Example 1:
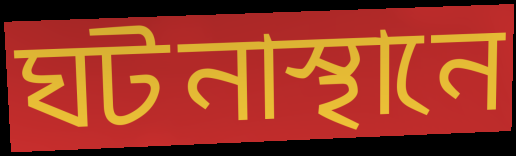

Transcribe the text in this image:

ঘটনাস্থানে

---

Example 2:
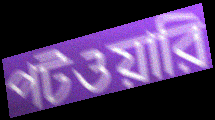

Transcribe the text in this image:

পটওয়ারি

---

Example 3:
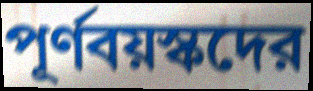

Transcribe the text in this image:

পূর্ণবয়স্কদের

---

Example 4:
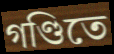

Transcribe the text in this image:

গণ্ডিতে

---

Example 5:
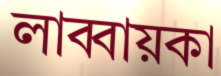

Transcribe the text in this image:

লাব্বায়কা